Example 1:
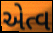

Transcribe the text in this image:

એત્વ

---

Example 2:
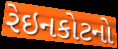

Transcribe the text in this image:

રેઇનકોટનો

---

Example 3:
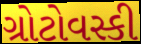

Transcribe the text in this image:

ગ્રોટોવસ્કી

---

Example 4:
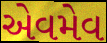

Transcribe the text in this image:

એવમેવ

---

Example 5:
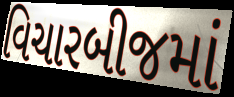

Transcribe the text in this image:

વિચારબીજમાં